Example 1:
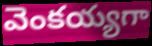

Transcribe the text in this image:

వెంకయ్యగా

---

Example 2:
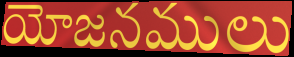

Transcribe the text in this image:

యోజనములు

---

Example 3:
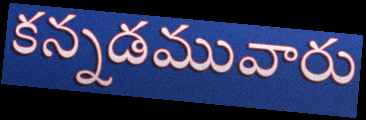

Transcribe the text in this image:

కన్నడమువారు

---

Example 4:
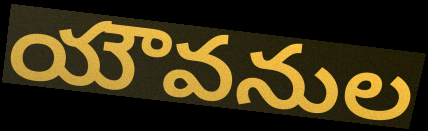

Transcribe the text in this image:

యౌవనుల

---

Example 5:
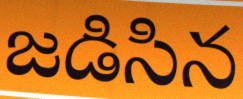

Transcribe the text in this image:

జడిసిన